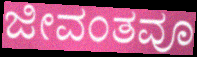
ಜೀವಂತವೂ